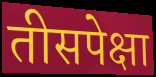
तीसपेक्षा